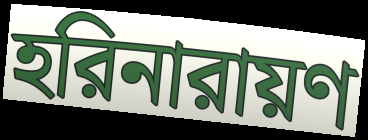
হরিনারায়ণ